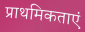
प्राथमिकताएं